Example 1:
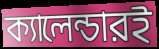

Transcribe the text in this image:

ক্যালেন্ডারই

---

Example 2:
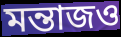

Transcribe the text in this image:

মন্তাজও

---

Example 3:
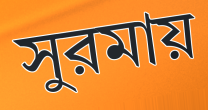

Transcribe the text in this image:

সুরমায়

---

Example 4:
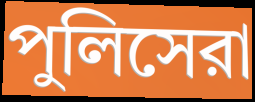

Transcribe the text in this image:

পুলিসেরা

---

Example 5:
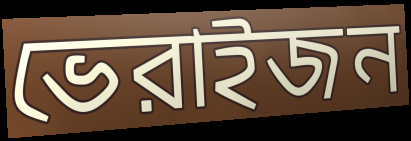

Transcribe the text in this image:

ভেরাইজন